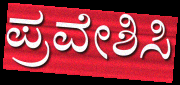
ಪ್ರವೇಶಿಸಿ